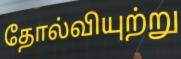
தோல்வியுற்று